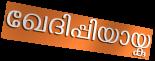
ഖേദിപ്പിയായ്കു